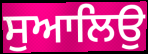
ਸੁਆਲਿਉ